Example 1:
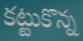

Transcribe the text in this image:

కట్టుకొన్న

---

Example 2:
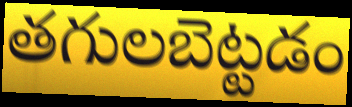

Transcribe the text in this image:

తగులబెట్టడం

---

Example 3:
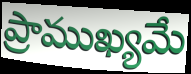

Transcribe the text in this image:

ప్రాముఖ్యమే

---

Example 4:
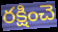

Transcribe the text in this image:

రక్షించె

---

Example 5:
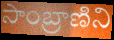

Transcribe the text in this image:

సాంబ్రాణిని